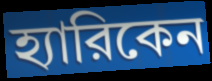
হ্যারিকেন